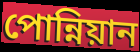
পোন্নিয়ান